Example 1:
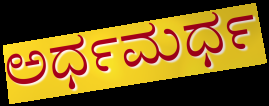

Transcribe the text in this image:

ಅರ್ಧಮರ್ಧ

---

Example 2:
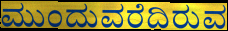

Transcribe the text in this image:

ಮುಂದುವರೆದಿರುವ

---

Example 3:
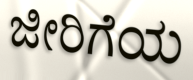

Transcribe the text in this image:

ಜೀರಿಗೆಯ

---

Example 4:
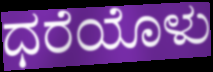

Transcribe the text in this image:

ಧರೆಯೊಳು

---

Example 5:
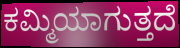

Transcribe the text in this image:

ಕಮ್ಮಿಯಾಗುತ್ತದೆ